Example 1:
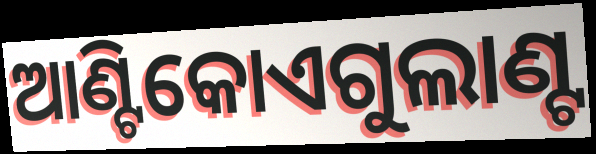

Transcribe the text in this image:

ଆଣ୍ଟିକୋଏଗୁଲାଣ୍ଟ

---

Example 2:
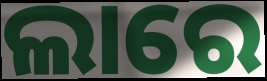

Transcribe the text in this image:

ଲାରେ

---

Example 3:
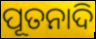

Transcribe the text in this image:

ପୂତନାଦି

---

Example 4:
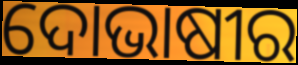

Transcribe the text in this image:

ଦୋଭାଷୀର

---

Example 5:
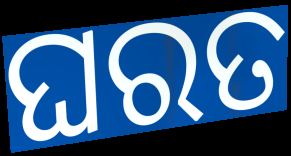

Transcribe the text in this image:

ଘରତ